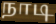
நாடி